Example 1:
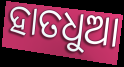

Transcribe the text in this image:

ହାତଧୁଆ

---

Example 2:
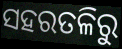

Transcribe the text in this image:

ସହରତଳିରୁ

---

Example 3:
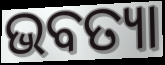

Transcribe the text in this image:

ଭବତ୍ୟା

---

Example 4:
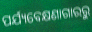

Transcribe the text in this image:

ପର୍ଯ୍ୟବେକ୍ଷଣାଗାରରୁ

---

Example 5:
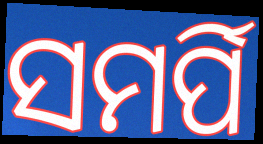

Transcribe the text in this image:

ସମର୍ପି